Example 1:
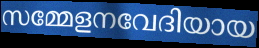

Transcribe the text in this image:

സമ്മേളനവേദിയായ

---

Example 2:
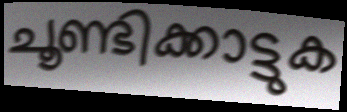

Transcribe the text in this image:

ചൂണ്ടിക്കാട്ടുക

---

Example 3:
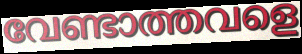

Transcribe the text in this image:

വേണ്ടാത്തവളെ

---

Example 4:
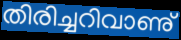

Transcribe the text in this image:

തിരിച്ചറിവാണു്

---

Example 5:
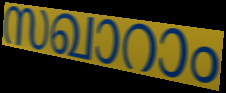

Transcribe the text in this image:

സഖാറാം